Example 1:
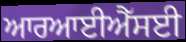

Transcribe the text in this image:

ਆਰਆਈਐੱਸਈ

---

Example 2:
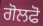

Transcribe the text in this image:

ਗੋਲਫੋ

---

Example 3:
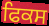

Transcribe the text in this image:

ਫਿਕਸ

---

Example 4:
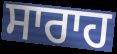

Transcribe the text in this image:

ਸਾਰਾਹ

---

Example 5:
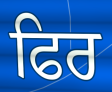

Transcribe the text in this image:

ਫਿਰ